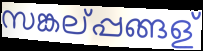
സങ്കല്പ്പങ്ങള്